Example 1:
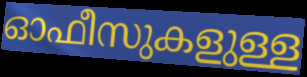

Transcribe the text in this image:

ഓഫീസുകളുള്ള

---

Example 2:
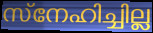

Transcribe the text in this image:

സ്‌നേഹിച്ചില്ല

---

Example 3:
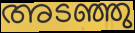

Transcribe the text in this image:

അടഞ്ഞു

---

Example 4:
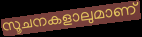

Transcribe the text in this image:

സൂചനകളാലുമാണ്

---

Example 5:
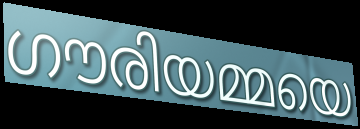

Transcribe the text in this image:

ഗൗരിയമ്മയെ